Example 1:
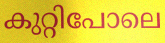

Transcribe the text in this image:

കുറ്റിപോലെ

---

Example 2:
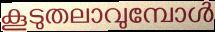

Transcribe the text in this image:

കൂടുതലാവുമ്പോൾ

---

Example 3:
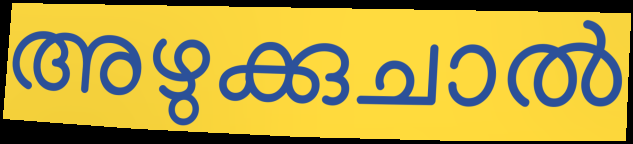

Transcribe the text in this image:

അഴുക്കുചാൽ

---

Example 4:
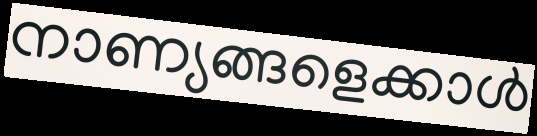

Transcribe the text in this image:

നാണ്യങ്ങളെക്കാൾ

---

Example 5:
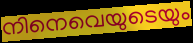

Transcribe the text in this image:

നിനെവെയുടെയും